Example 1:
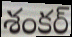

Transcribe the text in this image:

శంకర్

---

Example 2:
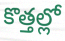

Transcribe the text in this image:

కొత్తల్లో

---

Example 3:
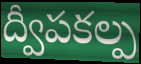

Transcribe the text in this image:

ద్వీపకల్ప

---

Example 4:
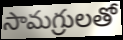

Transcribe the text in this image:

సామగ్రులతో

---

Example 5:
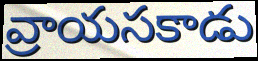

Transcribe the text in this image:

వ్రాయసకాడు